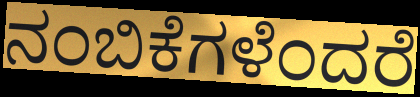
ನಂಬಿಕೆಗಳೆಂದರೆ